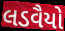
લડવૈયો